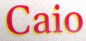
Caio